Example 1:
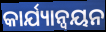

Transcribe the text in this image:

କାର୍ଯ୍ୟାନ୍ୱୟନ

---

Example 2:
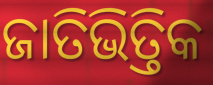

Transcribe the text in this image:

ଜାତିଭିତ୍ତିକ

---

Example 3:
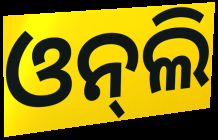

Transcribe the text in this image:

ଓନ୍‍ଲି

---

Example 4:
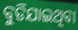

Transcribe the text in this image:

ବୁଡିଯାଇଥିବା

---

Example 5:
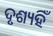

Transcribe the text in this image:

ଦୃଶ୍ୟହିଁ